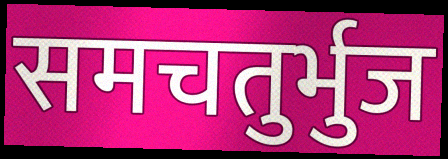
समचतुर्भुज